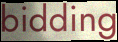
bidding